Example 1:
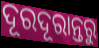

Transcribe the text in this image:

ଦୂରଦୂରାନ୍ତରୁ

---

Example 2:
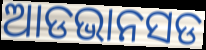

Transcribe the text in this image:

ଆଡଭାନସଡ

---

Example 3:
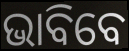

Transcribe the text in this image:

ଭାବିବେ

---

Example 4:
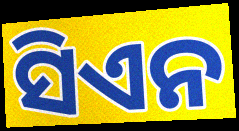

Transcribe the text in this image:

ସିଏନ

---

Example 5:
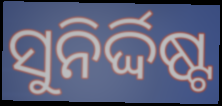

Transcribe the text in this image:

ସୁନିର୍ଦ୍ଦିଷ୍ଟ